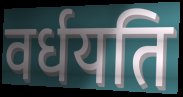
वर्धयति